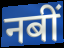
नबीं